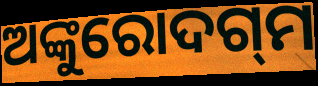
ଅଙ୍କୁରୋଦଗ୍‌ମ